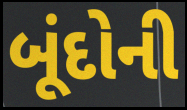
બૂંદોની